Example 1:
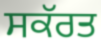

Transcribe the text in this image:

ਸਕੱਰਤ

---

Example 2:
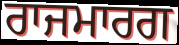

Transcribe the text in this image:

ਰਾਜਮਾਰਗ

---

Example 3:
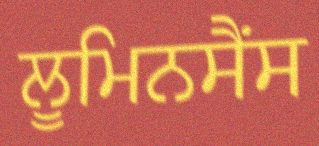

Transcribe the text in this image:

ਲੂਮਿਨਸੈਂਸ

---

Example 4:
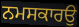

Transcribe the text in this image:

ਨਮਸਕਾਰਉ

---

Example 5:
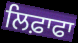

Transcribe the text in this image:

ਲਿਫ਼ਾਫਾ